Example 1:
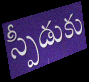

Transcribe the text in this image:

స్పీడుకు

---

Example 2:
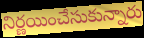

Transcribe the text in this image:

నిర్ణయించేసుకున్నారు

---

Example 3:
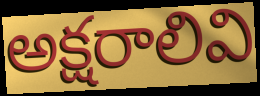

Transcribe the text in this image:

అక్షరాలివి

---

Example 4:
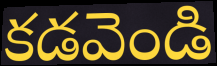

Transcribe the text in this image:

కడవెండి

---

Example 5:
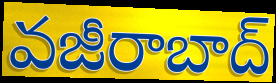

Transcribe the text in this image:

వజీరాబాద్